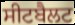
ਸੀਟਬੈਲਟ